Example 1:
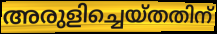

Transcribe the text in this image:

അരുളിച്ചെയ്തതിന്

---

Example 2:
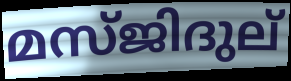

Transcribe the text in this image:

മസ്ജിദുല്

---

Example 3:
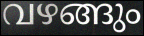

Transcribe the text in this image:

വഴങ്ങും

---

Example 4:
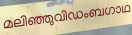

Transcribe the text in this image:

മലിഞ്ഞുവിഡംബഗാഥ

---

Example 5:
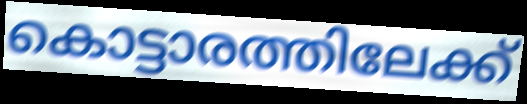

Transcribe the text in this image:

കൊട്ടാരത്തിലേക്ക്